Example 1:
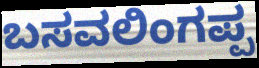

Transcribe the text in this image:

ಬಸವಲಿಂಗಪ್ಪ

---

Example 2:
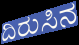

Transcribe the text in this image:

ದಿರುಸಿನ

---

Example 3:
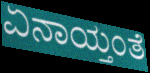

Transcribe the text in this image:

ಏನಾಯ್ತಂತೆ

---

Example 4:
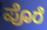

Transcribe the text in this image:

ಪೊರೆ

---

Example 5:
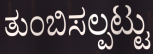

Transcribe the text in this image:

ತುಂಬಿಸಲ್ಪಟ್ಟು